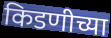
किडणीच्या